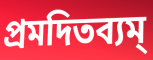
প্রমদিতব্যম্